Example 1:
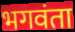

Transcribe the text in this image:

भगवंता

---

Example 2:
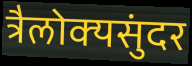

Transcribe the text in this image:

त्रैलोक्यसुंदर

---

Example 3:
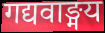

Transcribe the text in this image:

गद्यवाङ्मय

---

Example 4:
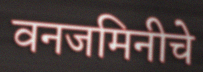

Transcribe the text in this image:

वनजमिनीचे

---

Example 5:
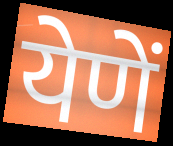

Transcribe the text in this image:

येणें